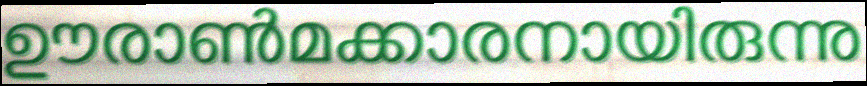
ഊരാൺമക്കാരനായിരുന്നു